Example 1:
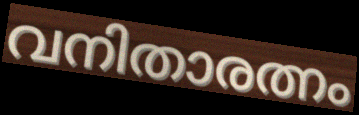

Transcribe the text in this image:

വനിതാരത്നം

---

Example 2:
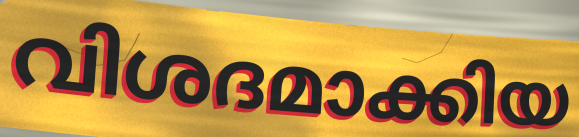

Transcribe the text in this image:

വിശദമാക്കിയ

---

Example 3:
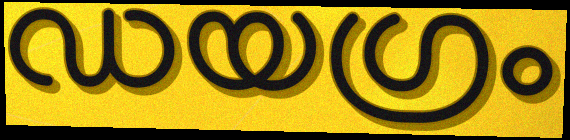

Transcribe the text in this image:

ഡയഗ്രം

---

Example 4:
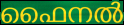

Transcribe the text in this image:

ഫൈനൽ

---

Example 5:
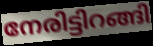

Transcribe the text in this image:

നേരിട്ടിറങ്ങി